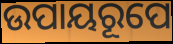
ଉପାୟରୂପେ